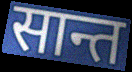
सान्त